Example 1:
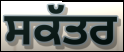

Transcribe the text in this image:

ਸਕੱਤਰ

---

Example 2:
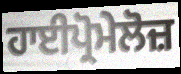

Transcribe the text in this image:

ਹਾਈਪ੍ਰੋਮੇਲੋਜ਼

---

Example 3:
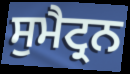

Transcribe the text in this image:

ਸੁਮੈਟ੍ਰਨ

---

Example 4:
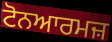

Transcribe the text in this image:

ਟੋਨਆਰਮਜ਼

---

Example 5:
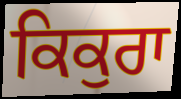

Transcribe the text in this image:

ਕਿਕੁਰਾ